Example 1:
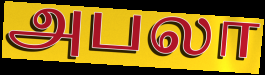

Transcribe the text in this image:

அபலா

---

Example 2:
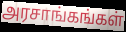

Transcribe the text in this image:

அரசாங்கங்கள்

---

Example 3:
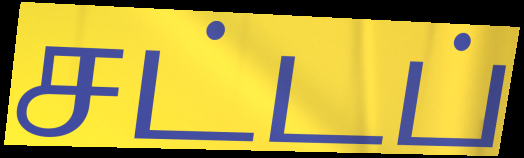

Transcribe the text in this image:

சட்டப்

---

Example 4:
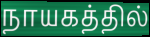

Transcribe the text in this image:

நாயகத்தில்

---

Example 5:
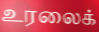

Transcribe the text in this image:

உரலைக்